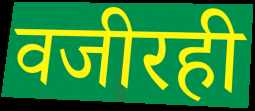
वजीरही